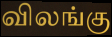
விலங்கு